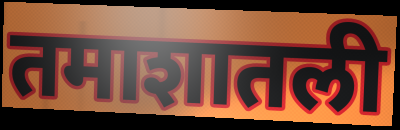
तमाशातली